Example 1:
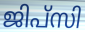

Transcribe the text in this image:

ജിപ്സി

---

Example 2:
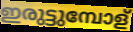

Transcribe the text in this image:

ഇരുട്ടുമ്പോള്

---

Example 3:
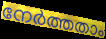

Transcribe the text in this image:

നേർത്തതാം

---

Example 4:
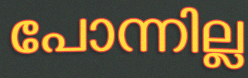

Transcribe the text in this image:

പോന്നില്ല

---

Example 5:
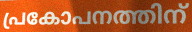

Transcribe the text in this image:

പ്രകോപനത്തിന്